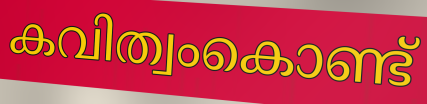
കവിത്വംകൊണ്ട്